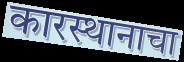
कारस्थानाचा